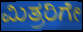
ಮಿತ್ರರಿಗೇ